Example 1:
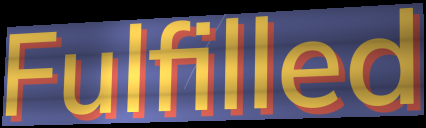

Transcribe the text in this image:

Fulfilled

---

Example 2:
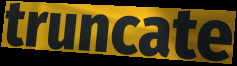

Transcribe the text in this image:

truncate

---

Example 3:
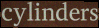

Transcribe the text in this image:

cylinders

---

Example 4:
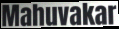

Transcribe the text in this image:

Mahuvakar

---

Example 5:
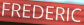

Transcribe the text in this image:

FREDERIC